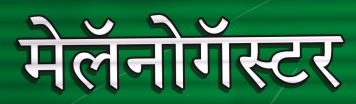
मेलॅनोगॅस्टर